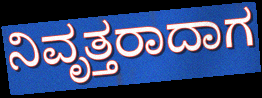
ನಿವೃತ್ತರಾದಾಗ